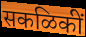
सकळिकीं